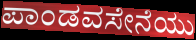
ಪಾಂಡವಸೇನೆಯು